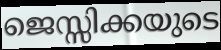
ജെസ്സിക്കയുടെ